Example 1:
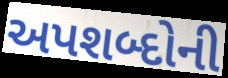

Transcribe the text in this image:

અપશબ્દોની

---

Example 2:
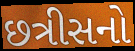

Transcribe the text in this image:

છત્રીસનો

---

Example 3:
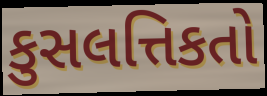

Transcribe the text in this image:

કુસલત્તિકતો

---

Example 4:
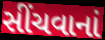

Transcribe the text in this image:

સીંચવાનાં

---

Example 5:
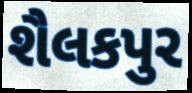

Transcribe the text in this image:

શૈલકપુર